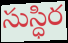
సుస్ధిర